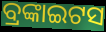
ବ୍ରଙ୍କାଇଟସ